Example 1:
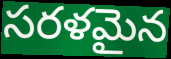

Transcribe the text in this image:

సరళమైన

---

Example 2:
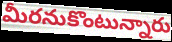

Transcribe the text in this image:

మీరనుకొంటున్నారు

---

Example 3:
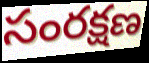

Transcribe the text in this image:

సంరక్షణ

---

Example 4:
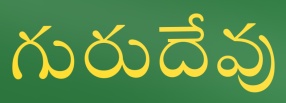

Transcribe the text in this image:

గురుదేవు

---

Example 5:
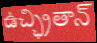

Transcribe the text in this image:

ఉచ్ఛ్రితాన్